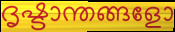
ദൃഷ്ടാന്തങ്ങളോ